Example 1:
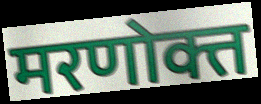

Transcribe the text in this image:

मरणोक्त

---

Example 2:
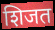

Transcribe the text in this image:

शिजत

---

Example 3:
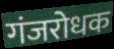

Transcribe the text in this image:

गंजरोधक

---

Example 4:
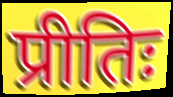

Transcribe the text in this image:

प्रीतिः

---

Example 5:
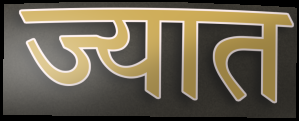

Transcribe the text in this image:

ज्यात